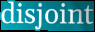
disjoint